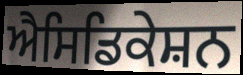
ਐਸਿਡਿਕੇਸ਼ਨ